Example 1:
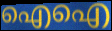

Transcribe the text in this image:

ഐഐ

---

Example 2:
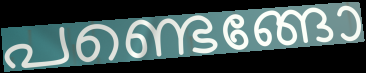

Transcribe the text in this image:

പണ്ടെങ്ങോ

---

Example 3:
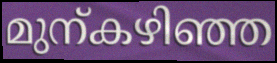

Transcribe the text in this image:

മുന്കഴിഞ്ഞ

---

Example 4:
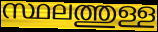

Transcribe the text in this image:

സ്ഥലത്തുള്ള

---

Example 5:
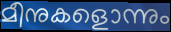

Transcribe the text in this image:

മീനുകളൊന്നും